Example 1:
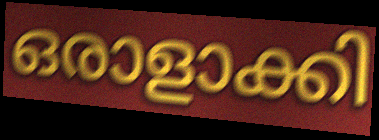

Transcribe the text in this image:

ഒരാളാക്കി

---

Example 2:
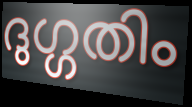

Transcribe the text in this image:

ദുഗ്ഗതിം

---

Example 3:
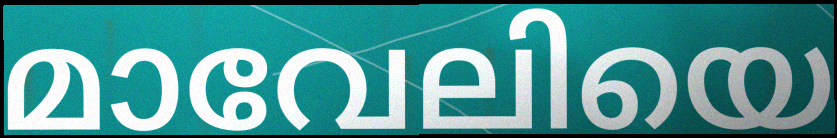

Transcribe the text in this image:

മാവേലിയെ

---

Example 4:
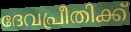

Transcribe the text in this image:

ദേവപ്രീതിക്ക്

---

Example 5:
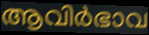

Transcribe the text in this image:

ആവിർഭാവ